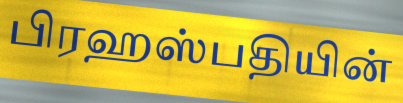
பிரஹஸ்பதியின்